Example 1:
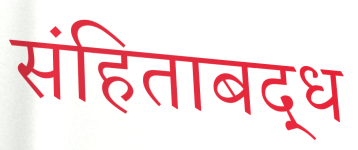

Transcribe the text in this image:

संहिताबद्ध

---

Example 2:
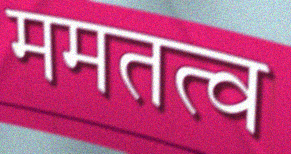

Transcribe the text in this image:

ममतत्व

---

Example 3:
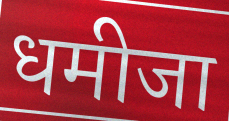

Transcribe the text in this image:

धमीजा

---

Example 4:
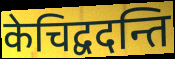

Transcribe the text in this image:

केचिद्वदन्ति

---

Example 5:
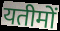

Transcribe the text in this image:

यतीमों